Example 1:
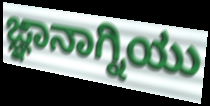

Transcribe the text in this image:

ಜ್ಞಾನಾಗ್ನಿಯು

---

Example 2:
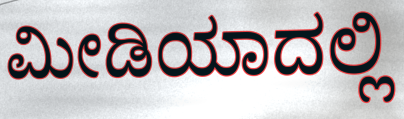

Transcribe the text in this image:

ಮೀಡಿಯಾದಲ್ಲಿ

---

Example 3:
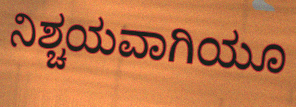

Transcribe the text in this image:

ನಿಶ್ಚಯವಾಗಿಯೂ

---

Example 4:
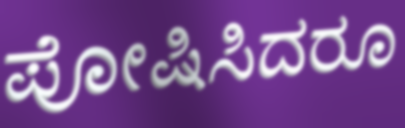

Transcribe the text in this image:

ಪೋಷಿಸಿದರೂ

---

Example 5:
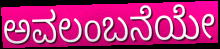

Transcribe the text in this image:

ಅವಲಂಬನೆಯೇ